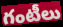
గంటీలు